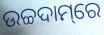
ଉଚ୍ଚଦାମ୍‌ରେ